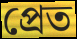
প্রেত